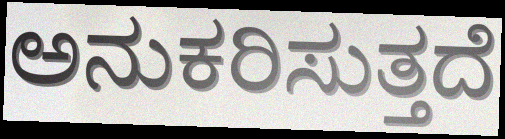
ಅನುಕರಿಸುತ್ತದೆ